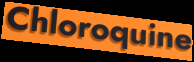
Chloroquine